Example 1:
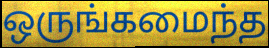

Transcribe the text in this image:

ஒருங்கமைந்த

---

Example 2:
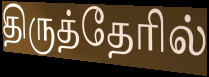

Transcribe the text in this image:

திருத்தேரில்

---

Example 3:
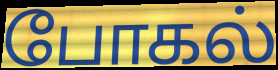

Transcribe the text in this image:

போகல்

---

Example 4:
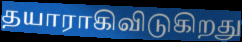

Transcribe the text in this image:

தயாராகிவிடுகிறது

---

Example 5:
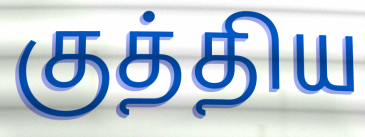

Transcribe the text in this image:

குத்திய